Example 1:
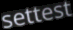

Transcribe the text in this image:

settest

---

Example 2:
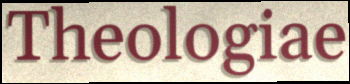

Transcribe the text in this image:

Theologiae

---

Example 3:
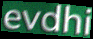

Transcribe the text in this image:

evdhi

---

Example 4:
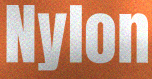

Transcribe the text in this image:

Nylon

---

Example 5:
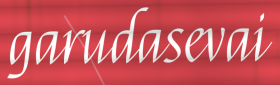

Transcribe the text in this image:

garudasevai